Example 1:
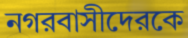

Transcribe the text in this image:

নগরবাসীদেরকে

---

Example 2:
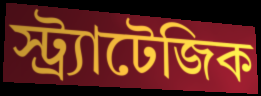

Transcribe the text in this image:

স্ট্র্যাটেজিক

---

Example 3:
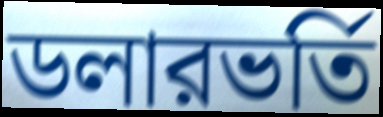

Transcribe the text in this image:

ডলারভর্তি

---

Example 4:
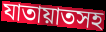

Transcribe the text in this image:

যাতায়াতসহ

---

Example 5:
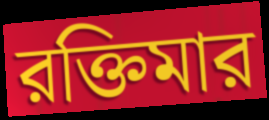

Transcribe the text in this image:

রক্তিমার